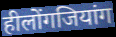
हीलोंगजियांग